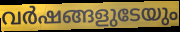
വർഷങ്ങളുടേയും